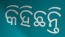
କିହିଛନ୍ତି